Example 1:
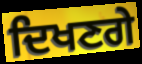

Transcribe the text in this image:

ਦਿਖਣਗੇ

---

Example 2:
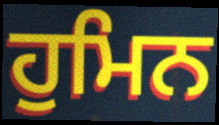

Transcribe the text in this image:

ਹੁਮਿਨ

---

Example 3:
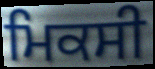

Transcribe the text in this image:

ਮਿਕਸੀ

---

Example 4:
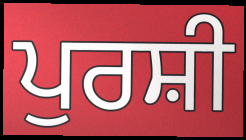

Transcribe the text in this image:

ਪੁਰਸ਼ੀ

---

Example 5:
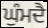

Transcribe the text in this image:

ਘੁੰਮਦੈ